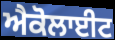
ਐਕੋਲਾਈਟ